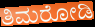
ತಿಮರೋಡಿ